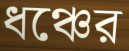
ধঞ্চের